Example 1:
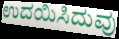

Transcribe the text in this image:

ಉದಯಿಸಿದುವು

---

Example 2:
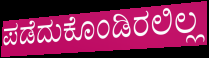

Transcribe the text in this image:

ಪಡೆದುಕೊಂಡಿರಲಿಲ್ಲ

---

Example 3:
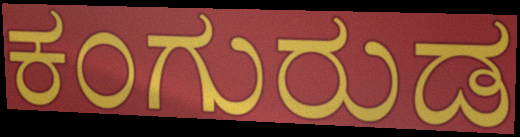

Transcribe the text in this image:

ಕಂಗುರುಡ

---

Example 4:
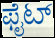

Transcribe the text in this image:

ಫೈಟ್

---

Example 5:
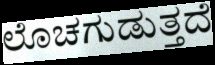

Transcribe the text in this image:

ಲೊಚಗುಡುತ್ತದೆ